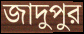
জাদুপুর